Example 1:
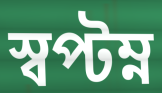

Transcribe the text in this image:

স্বপ্টম্ন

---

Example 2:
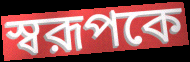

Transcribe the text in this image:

স্বরূপকে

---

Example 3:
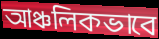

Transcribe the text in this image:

আঞ্চলিকভাবে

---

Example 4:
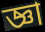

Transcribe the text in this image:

জ্ঞা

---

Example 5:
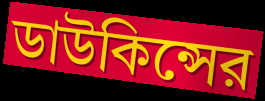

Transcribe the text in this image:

ডাউকিন্সের